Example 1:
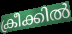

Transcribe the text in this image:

ക്രീക്കിൽ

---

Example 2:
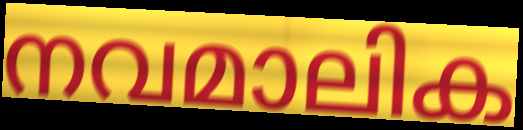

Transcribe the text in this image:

നവമാലിക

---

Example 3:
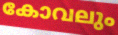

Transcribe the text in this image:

കോവലും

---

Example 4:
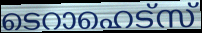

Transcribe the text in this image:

ടെറാഹെട്സ്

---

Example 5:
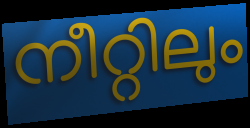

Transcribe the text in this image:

നീറ്റിലും